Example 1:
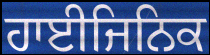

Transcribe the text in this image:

ਹਾਈਜਿਨਿਕ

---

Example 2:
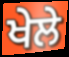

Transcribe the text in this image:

ਖੇਲੇ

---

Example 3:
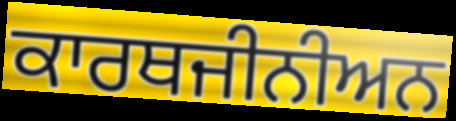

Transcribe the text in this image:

ਕਾਰਥਜੀਨੀਅਨ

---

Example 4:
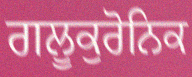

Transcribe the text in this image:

ਗਲੂਕੁਰੋਨਿਕ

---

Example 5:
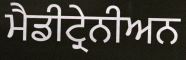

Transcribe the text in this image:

ਮੈਡੀਟ੍ਰੇਨੀਅਨ